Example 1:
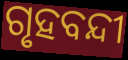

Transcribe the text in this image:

ଗୃହବନ୍ଦୀ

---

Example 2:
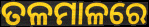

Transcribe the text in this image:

ତଳମାଳରେ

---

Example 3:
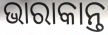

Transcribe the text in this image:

ଭାରାକାନ୍ତ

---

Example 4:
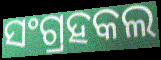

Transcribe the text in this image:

ସଂଗ୍ରହକଲ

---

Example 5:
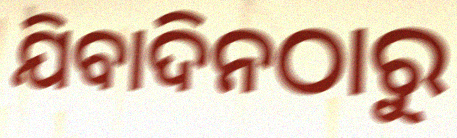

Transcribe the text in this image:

ଯିବାଦିନଠାରୁ